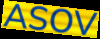
ASOV